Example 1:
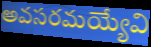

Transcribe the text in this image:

అవసరమయ్యేవి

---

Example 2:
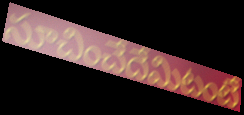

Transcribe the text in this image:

సూచించేదేమిటంటే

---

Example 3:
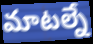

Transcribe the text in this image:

మాటల్నే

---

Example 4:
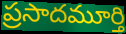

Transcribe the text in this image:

ప్రసాదమూర్తి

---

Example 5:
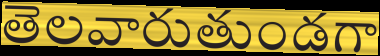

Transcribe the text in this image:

తెలవారుతుండగా